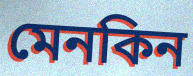
মেনকিন